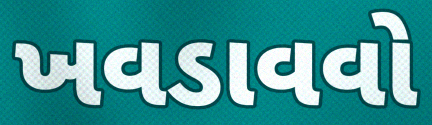
ખવડાવવો